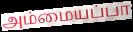
அம்மையப்பா